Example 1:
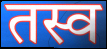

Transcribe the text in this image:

तस्व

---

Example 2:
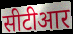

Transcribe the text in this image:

सीटीआर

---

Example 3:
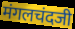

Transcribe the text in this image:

मंगलचंदजी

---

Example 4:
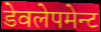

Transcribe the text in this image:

डेवलेपमेन्ट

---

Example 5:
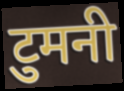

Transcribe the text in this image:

टुमनी